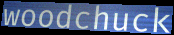
woodchuck